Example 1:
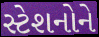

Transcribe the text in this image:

સ્ટેશનોને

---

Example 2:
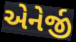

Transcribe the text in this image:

એનેર્જી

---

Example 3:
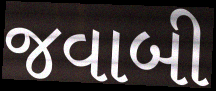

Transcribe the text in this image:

જવાબી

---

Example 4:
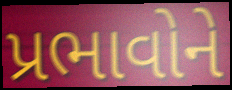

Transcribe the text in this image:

પ્રભાવોને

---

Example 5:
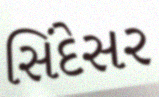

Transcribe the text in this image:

સિંદેસર